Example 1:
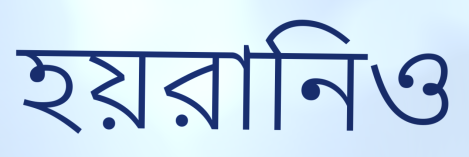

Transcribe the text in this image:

হয়রানিও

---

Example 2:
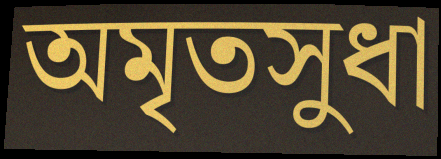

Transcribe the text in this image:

অমৃতসুধা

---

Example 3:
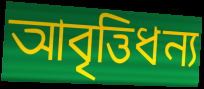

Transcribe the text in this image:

আবৃত্তিধন্য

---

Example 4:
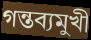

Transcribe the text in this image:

গন্তব্যমুখী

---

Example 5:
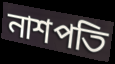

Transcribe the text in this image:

নাশপতি